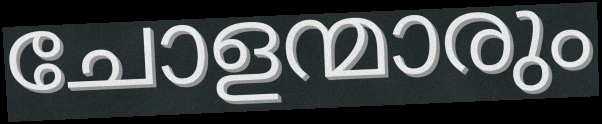
ചോളന്മാരും